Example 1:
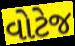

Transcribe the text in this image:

વોટેજ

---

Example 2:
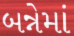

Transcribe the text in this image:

બન્નેમાં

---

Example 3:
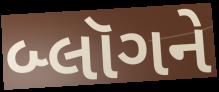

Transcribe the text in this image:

બ્લૉગને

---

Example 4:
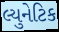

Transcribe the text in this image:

લ્યુનેટિક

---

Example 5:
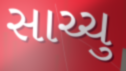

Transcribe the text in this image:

સાચ્ચુ